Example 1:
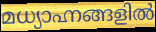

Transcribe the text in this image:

മധ്യാഹ്നങ്ങളിൽ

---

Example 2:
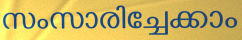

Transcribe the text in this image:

സംസാരിച്ചേക്കാം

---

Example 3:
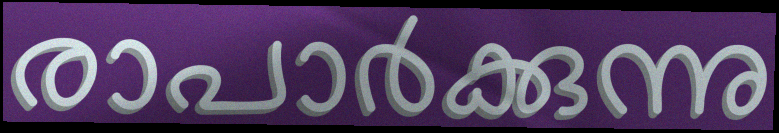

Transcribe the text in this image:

രാപാർക്കുന്നു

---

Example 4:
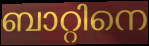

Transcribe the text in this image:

ബാറ്റിനെ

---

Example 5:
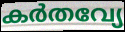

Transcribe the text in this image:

കർതവ്യേ